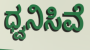
ಧ್ವನಿಸಿವೆ